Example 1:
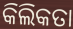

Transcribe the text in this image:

କିଲିକତା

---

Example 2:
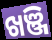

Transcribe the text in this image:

ଖଞ୍ଜି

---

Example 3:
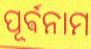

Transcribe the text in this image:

ପୂର୍ଵନାମ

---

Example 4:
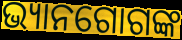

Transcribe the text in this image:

ଭ୍ୟାନଗୋଗଙ୍କ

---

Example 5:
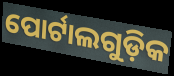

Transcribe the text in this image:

ପୋର୍ଟାଲଗୁଡ଼ିକ